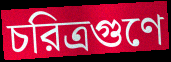
চরিত্রগুণে